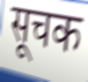
सूचक